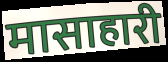
मासाहारी